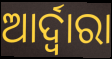
ଆର୍ଦ୍ୱାରା